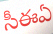
సీఈఏ